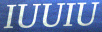
IUUIU